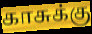
காசுக்கு